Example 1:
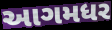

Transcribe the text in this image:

આગમધર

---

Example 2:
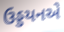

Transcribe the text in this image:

ઉડ્ડયનએ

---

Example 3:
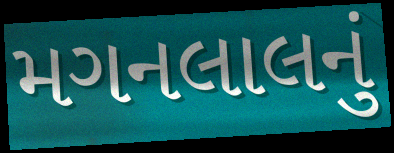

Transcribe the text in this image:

મગનલાલનું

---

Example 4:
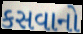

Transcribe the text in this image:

કસવાનો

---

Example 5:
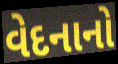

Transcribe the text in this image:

વેદનાનો